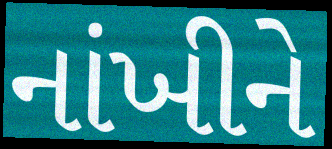
નાંખીને